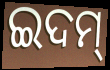
ଇଦମ୍